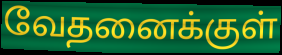
வேதனைக்குள்